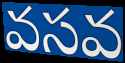
వసవ